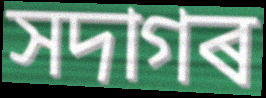
সদাগৰ